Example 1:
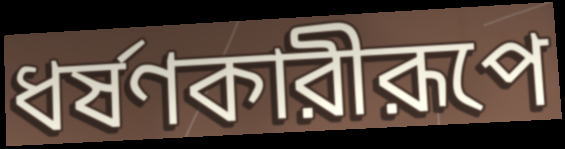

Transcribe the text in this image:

ধর্ষণকারীরূপে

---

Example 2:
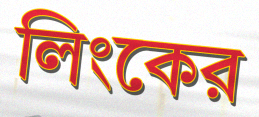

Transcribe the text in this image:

লিংকের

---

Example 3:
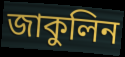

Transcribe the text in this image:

জাকুলিন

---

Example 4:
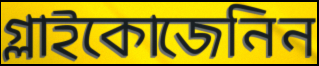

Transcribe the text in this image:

গ্লাইকোজেনিন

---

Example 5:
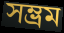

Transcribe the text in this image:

সম্ভ্রম